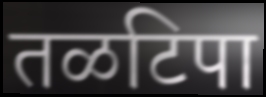
तळटिपा